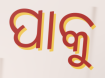
ପାକୁ